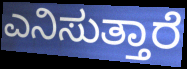
ಎನಿಸುತ್ತಾರೆ